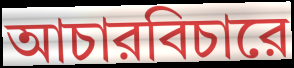
আচারবিচারে